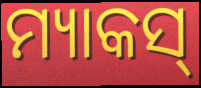
ମ୍ୟାକସ୍